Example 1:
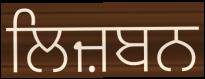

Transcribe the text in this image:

ਲਿਜ਼ਬਨ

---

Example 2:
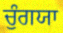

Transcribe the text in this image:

ਚੁੰਗਯਾ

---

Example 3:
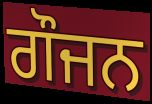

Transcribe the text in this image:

ਗੌਜਨ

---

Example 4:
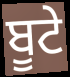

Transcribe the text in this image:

ਬੂਟੇ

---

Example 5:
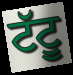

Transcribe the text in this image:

ਟੱਟੂ